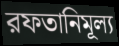
রফতানিমূল্য